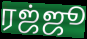
ரஜ்ஜூ